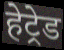
हेट्रेड